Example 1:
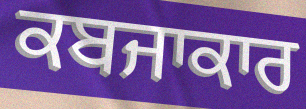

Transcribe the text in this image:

ਕਬਜਾਕਾਰ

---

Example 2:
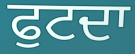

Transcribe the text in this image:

ਫੁਟਦਾ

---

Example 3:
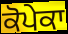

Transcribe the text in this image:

ਕੋਪੇਕਾ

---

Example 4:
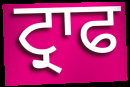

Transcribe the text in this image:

ਟ੍ਰਾਫ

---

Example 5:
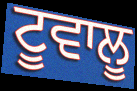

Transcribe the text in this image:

ਟੂਵਾਲੂ